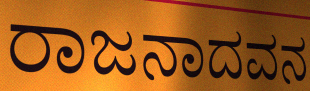
ರಾಜನಾದವನ